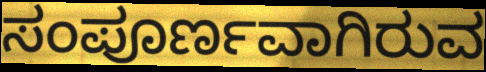
ಸಂಪೂರ್ಣವಾಗಿರುವ